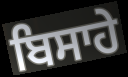
ਬਿਸਾਹੇ